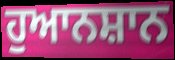
ਹੁਆਨਸ਼ਾਨ